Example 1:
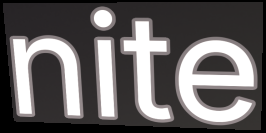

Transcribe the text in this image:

nite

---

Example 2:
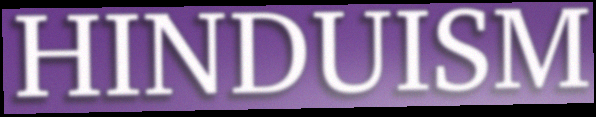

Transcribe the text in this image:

HINDUISM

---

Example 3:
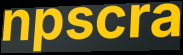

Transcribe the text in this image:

npscra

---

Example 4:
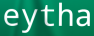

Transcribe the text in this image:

eytha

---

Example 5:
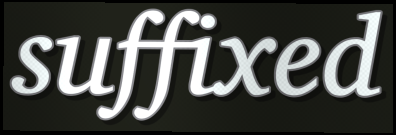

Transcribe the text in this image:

suffixed